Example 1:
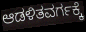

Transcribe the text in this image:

ಆಡಳಿತವರ್ಗಕ್ಕೆ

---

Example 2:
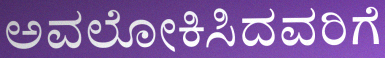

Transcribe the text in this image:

ಅವಲೋಕಿಸಿದವರಿಗೆ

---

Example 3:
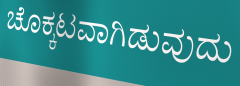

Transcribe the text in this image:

ಚೊಕ್ಕಟವಾಗಿಡುವುದು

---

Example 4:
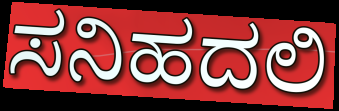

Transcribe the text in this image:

ಸನಿಹದಲಿ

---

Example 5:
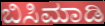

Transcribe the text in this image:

ಬಿಸಿಮಾಡಿ